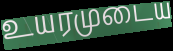
உயரமுடைய